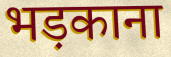
भड़काना